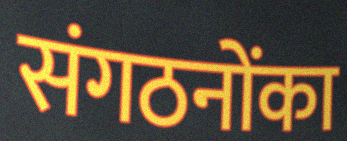
संगठनोंका